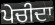
ਪੇਚੀਦਾ